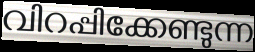
വിറപ്പിക്കേണ്ടുന്ന